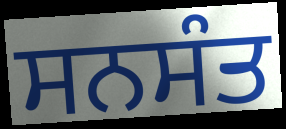
ਸਨਸੰਤ